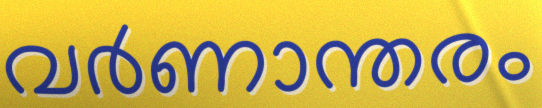
വർണാന്തരം